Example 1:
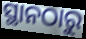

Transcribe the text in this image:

ସ୍ଥାନଠାରୁ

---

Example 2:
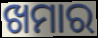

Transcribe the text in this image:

ଖମାର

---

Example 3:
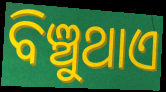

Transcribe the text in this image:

ବିଞ୍ଚୁଥାଏ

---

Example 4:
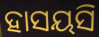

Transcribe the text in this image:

ହାସୟସି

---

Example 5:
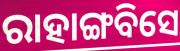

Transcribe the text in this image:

ରାହାଙ୍ଗବିସେ